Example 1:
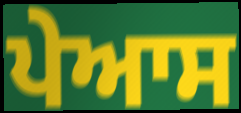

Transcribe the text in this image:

ਪੇਆਸ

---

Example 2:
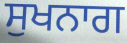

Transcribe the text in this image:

ਸੁਖਨਾਗ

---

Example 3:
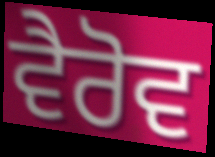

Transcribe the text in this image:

ਵੈਰੋਵ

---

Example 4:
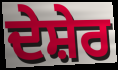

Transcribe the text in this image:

ਦੇਸ਼ੇਰ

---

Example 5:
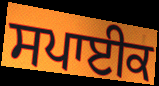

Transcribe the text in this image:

ਸਪਾਈਕ